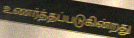
உணர்த்தப்படுகின்றது